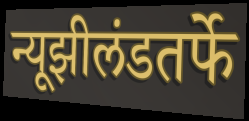
न्यूझीलंडतर्फे